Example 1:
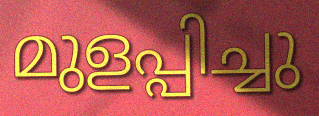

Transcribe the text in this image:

മുളപ്പിച്ചു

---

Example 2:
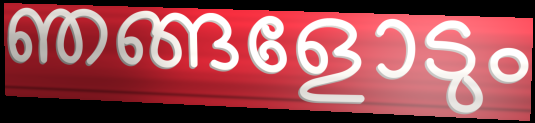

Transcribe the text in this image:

ഞങ്ങളോടും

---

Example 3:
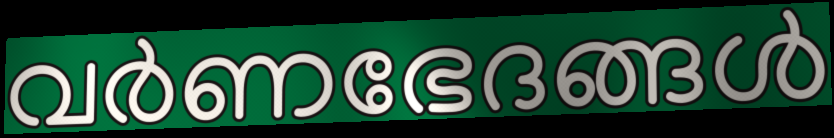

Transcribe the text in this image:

വർണഭേദങ്ങൾ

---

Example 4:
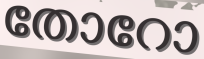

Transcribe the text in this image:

തോറോ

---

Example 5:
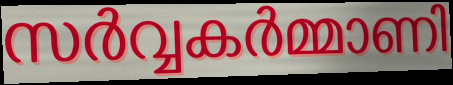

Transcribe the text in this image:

സർവ്വകർമ്മാണി